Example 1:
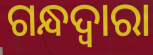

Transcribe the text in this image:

ଗନ୍ଧଦ୍ୱାରା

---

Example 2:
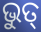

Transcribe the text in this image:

ଭୁତ୍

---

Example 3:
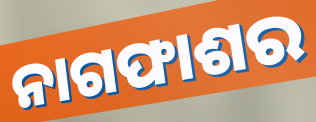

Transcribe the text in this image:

ନାଗଫାଶର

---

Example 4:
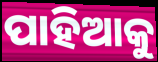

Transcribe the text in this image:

ପାହିଆକୁ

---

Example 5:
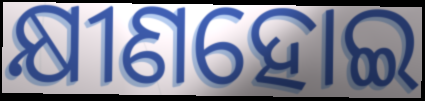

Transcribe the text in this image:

କ୍ଷୀଣହୋଇ